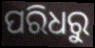
ପରିଧରୁ